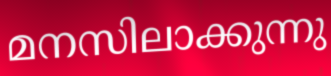
മനസിലാക്കുന്നു